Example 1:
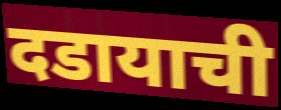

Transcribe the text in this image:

दडायाची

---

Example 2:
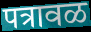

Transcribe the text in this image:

पत्रावळ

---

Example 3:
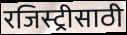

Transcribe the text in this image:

रजिस्ट्रीसाठी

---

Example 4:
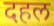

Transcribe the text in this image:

दहल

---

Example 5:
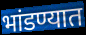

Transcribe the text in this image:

भांडण्यात